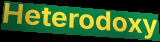
Heterodoxy